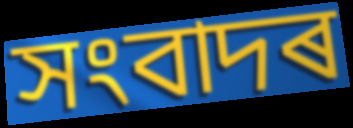
সংবাদৰ